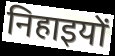
निहाइयों